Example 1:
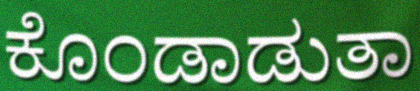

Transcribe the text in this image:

ಕೊಂಡಾಡುತಾ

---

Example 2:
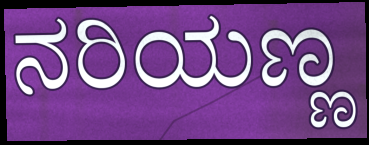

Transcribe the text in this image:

ನರಿಯಣ್ಣ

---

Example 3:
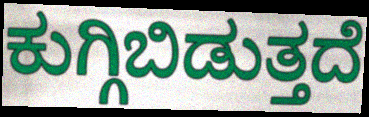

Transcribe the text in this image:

ಕುಗ್ಗಿಬಿಡುತ್ತದೆ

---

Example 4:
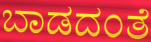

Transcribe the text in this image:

ಬಾಡದಂತೆ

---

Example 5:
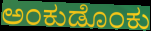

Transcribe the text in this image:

ಅಂಕುಡೊಂಕು